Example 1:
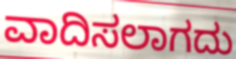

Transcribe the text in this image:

ವಾದಿಸಲಾಗದು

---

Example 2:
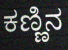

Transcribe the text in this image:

ಕಣ್ಣಿನ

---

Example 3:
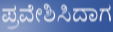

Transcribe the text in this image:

ಪ್ರವೇಶಿಸಿದಾಗ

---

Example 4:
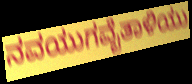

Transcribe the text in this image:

ನವಯುಗವೈತಾಳಿಯು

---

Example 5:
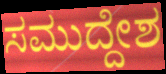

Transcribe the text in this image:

ಸಮುದ್ದೇಶ